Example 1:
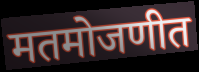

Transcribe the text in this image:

मतमोजणीत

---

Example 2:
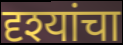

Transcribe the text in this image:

दृश्यांचा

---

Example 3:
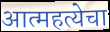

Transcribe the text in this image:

आत्महत्येचा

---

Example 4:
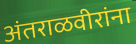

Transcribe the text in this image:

अंतराळवीरांना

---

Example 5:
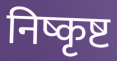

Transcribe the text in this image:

निष्कृष्ट